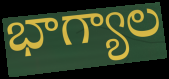
భాగ్యాల